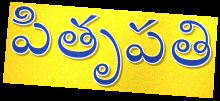
పితృపతి